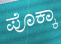
ಪೊಕ್ಕಾ